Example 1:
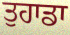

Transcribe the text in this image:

ਤੁਹਾਡਾ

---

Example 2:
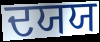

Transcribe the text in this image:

ਦਯਯ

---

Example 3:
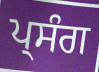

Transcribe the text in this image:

ਪ੍ਸੰਗ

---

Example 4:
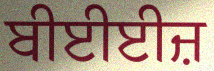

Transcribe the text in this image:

ਬੀਈਈਜ਼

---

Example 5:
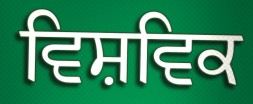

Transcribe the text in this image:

ਵਿਸ਼ਵਿਕ